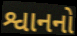
શ્વાનનો